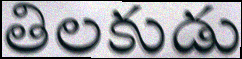
తిలకుడు